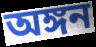
অঙ্গন